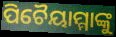
ପିଚୈୟାମ୍ମାଙ୍କୁ